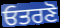
ਓਤਰਣੋ